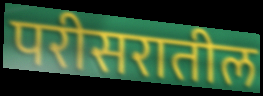
परीसरातील